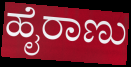
ಹೈರಾಣು